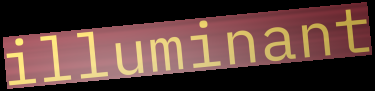
illuminant